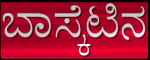
ಬಾಸ್ಕೆಟಿನ